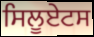
ਸਿਲੂਏਟਸ